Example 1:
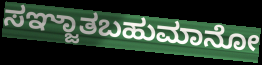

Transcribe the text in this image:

ಸಞ್ಜಾತಬಹುಮಾನೋ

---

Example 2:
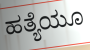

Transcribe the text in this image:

ಹತ್ಯೆಯೂ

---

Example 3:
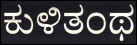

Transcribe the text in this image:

ಕುಳಿತಂಥ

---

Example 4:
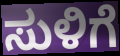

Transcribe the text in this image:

ಸುಳಿಗೆ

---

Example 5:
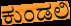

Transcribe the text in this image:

ಕುಂಡಲಿ